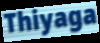
Thiyaga